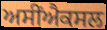
ਅਸੀਂਐਕਸਲ